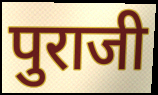
पुराजी